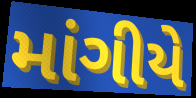
માંગીયે